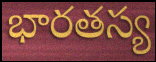
భారతస్య